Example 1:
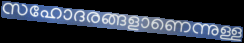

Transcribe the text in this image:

സഹോദരങ്ങളാണെന്നുള്ള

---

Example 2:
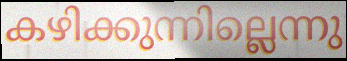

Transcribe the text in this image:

കഴിക്കുന്നില്ലെന്നു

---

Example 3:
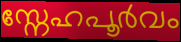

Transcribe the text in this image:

സ്നേഹപൂർവം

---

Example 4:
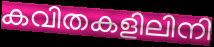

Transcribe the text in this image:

കവിതകളിലിനി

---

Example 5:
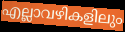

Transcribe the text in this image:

എല്ലാവഴികളിലും